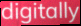
digitally